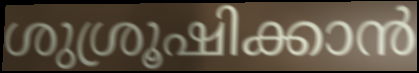
ശുശ്രൂഷിക്കാൻ